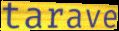
tarave